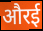
औरई